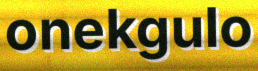
onekgulo